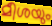
മീശയും